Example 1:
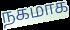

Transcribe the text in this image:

நகமாக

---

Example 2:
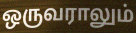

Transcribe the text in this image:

ஒருவராலும்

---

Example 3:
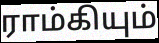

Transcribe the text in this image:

ராம்கியும்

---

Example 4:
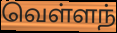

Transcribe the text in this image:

வெள்ளந்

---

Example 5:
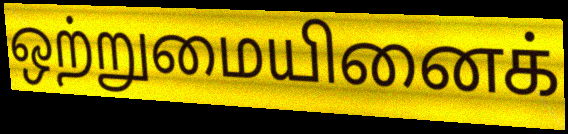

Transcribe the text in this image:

ஒற்றுமையினைக்